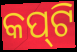
କପ୍‌ଟି